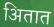
अितात